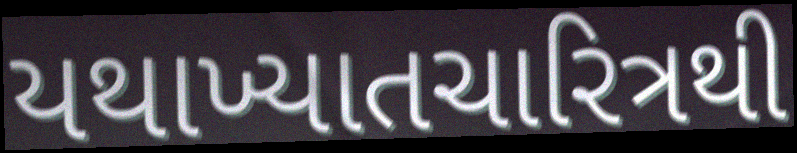
યથાખ્યાતચારિત્રથી